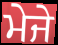
ਮੇਜੇ